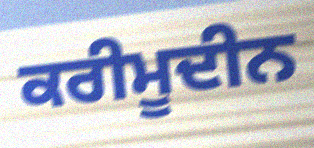
ਕਰੀਮੂਦੀਨ